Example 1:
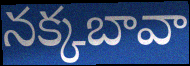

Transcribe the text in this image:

నక్కబావా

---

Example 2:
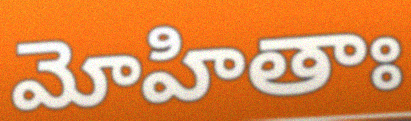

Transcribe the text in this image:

మోహితాః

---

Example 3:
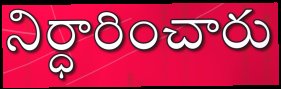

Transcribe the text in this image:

నిర్ధారించారు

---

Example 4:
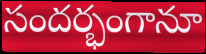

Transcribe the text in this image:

సందర్భంగానూ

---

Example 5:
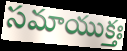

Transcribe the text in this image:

సమాయుక్తః